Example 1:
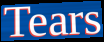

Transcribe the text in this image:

Tears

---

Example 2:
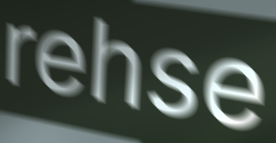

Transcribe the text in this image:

rehse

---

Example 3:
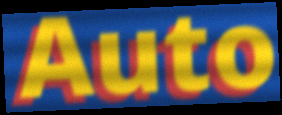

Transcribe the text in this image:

Auto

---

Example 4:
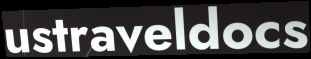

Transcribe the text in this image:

ustraveldocs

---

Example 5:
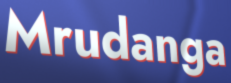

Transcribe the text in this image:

Mrudanga